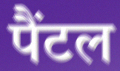
पैंटल